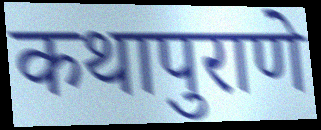
कथापुराणे